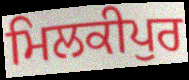
ਮਿਲਕੀਪੁਰ